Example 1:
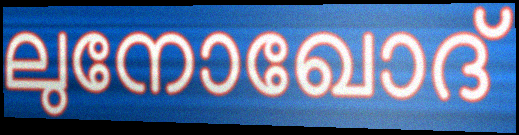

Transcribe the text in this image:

ലുനോഖോദ്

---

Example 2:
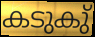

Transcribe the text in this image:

കടുകു്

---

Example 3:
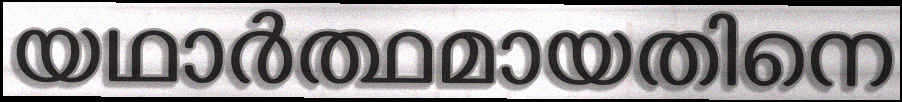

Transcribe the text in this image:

യഥാർത്ഥമായതിനെ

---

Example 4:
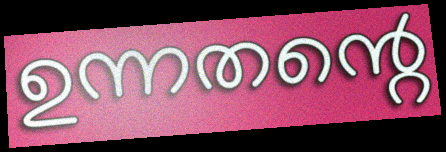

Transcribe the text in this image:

ഉന്നതന്റെ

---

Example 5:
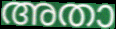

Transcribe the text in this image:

അതാ